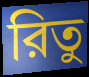
রিতু